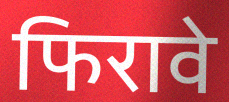
फिरावे